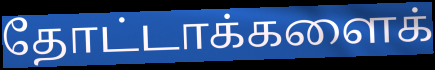
தோட்டாக்களைக்